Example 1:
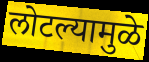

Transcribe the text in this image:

लोटल्यामुळे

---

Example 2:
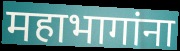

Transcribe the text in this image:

महाभागांना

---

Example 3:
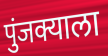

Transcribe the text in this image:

पुंजक्याला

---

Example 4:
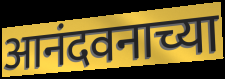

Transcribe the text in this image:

आनंदवनाच्या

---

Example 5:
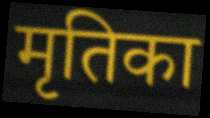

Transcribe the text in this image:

मृतिका